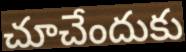
చూచేందుకు